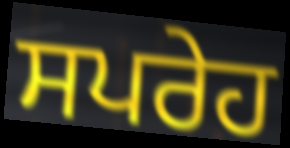
ਸਪਰੇਹ